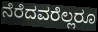
ನೆರೆದವರೆಲ್ಲರೂ